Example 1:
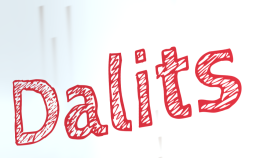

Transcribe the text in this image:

Dalits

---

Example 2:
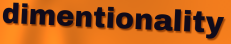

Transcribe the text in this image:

dimentionality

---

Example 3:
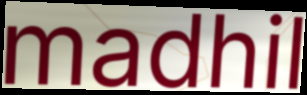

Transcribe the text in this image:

madhil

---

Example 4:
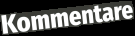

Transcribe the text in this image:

Kommentare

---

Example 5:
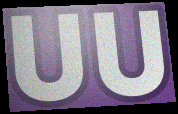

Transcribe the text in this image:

UU